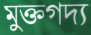
মুক্তগদ্য